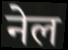
नेल